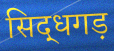
सिद्धगड़